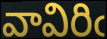
వావిరిఁ